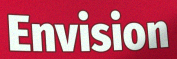
Envision